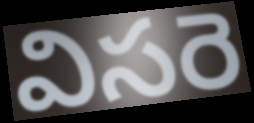
విసరె